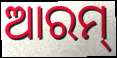
ଆରମ୍